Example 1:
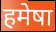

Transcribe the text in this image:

हमेषा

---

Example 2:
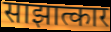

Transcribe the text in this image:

साझात्कार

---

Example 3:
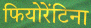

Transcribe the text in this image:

फियोरेंटिना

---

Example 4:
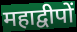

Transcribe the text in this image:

महाद्वीपों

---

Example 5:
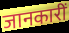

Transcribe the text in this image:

जानकारीं